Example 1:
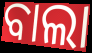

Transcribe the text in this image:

ବାଲା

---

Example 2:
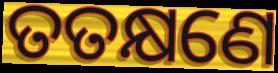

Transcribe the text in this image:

ତତକ୍ଷଣେ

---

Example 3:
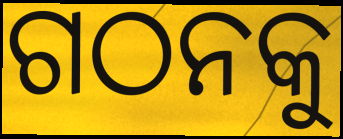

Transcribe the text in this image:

ଗଠନକୁ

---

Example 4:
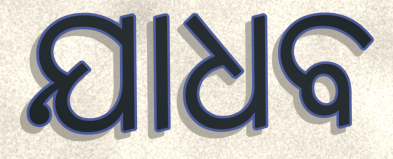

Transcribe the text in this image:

ଯାଧବ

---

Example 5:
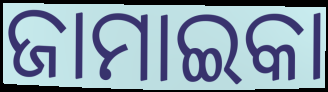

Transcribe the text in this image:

ଜାମାଇକା